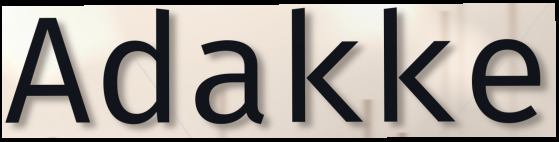
Adakke